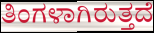
ತಿಂಗಳಾಗಿರುತ್ತದೆ